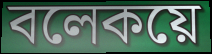
বলেকয়ে